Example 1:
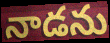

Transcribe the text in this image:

నాడను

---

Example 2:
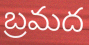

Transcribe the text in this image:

బ్రమద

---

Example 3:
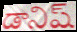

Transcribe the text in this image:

డానిష్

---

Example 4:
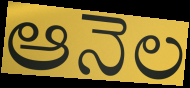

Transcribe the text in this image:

ఆనెల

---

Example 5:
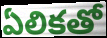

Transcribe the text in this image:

ఏలికతో